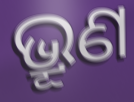
ଭ୍ରୂଣ